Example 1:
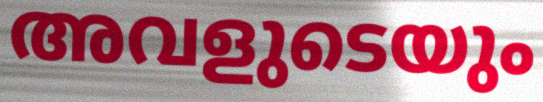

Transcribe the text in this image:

അവളുടെയും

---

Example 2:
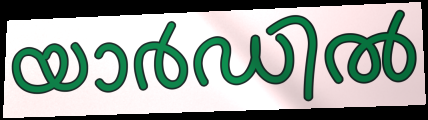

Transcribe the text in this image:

യാർഡിൽ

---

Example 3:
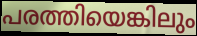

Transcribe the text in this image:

പരത്തിയെങ്കിലും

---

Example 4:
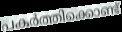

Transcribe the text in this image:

പകർത്തിക്കൊണ്ട്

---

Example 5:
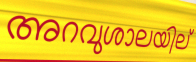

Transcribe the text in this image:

അറവുശാലയില്